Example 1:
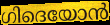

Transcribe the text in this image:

ഗിദെയോൻ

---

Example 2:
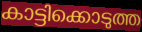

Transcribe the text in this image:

കാട്ടിക്കൊടുത്ത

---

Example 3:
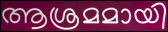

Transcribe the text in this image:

ആശ്രമമായി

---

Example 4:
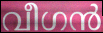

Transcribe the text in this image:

വീഗൻ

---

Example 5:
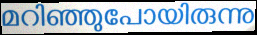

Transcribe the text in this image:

മറിഞ്ഞുപോയിരുന്നു